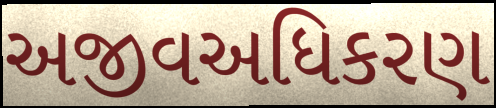
અજીવઅધિકરણ